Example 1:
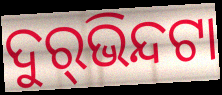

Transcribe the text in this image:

ଦୁର୍‌ଭିନ୍ଦଟା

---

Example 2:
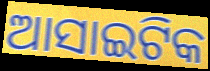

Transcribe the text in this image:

ଆସାଇଟିକ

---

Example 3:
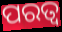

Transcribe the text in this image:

ପରତ୍ୱ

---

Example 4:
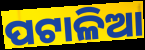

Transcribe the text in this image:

ପଟାଳିଆ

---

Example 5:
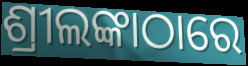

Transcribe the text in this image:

ଶ୍ରୀଲଙ୍କାଠାରେ